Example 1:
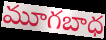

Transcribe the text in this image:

మూగబాధ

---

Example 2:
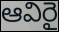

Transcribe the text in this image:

ఆవిరై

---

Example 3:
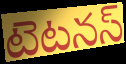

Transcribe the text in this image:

టెటనస్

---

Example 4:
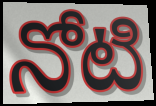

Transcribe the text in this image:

నోటి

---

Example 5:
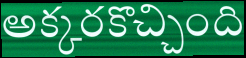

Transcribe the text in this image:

అక్కరకొచ్చింది